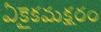
ఏకైకమక్షరం